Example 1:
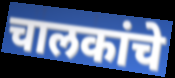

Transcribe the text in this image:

चालकांचे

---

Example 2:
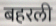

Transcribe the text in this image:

बहरली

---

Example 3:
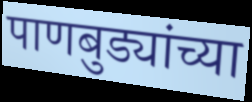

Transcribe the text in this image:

पाणबुड्यांच्या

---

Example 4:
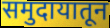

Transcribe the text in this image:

समुदायातून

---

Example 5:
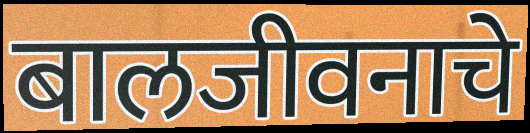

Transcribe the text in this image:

बालजीवनाचे